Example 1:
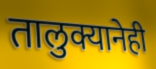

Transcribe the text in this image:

तालुक्यानेही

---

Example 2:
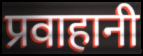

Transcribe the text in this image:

प्रवाहानी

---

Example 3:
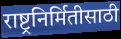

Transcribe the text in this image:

राष्ट्रनिर्मितीसाठी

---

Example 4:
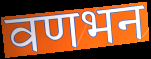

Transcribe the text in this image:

वणभन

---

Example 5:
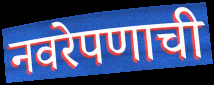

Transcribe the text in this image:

नवरेपणाची